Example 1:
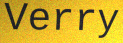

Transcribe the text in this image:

Verry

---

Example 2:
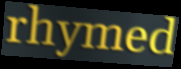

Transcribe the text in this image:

rhymed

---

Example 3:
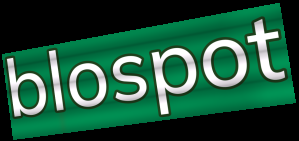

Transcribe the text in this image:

blospot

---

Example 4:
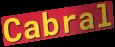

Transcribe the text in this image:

Cabral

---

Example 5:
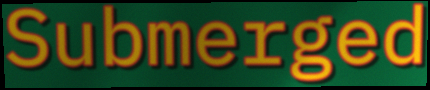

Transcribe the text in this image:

Submerged